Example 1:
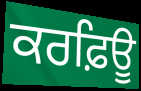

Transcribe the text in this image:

ਕਰਫ਼ਿਊ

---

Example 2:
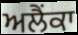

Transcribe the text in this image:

ਅਲੈਂਕਾ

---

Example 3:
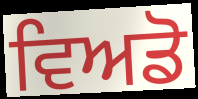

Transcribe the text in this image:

ਵਿਅਡੋ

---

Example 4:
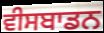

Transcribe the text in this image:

ਵੀਸਬਾਡਨ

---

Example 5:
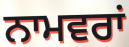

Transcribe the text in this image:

ਨਾਮਵਰਾਂ